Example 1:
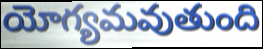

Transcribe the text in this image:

యోగ్యమవుతుంది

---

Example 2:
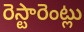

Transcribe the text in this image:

రెస్టారెంట్లు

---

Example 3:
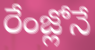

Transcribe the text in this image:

రేంజ్లోనే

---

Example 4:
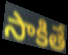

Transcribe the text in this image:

సాకితే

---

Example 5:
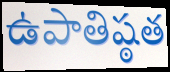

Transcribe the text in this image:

ఉపాతిష్ఠత